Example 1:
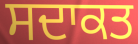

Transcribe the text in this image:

ਸਦਾਕਤ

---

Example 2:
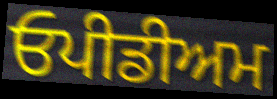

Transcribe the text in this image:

ਓਪੀਡੀਅਮ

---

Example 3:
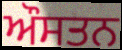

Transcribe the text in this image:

ਔਸਤਨ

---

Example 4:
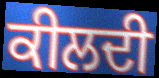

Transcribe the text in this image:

ਕੀਲਦੀ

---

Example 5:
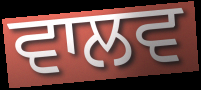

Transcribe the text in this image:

ਵਾਲਵ